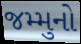
જમ્મુનો